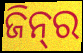
ଜିନ୍‍ର